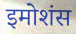
इमोशंस